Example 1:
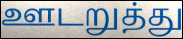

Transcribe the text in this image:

ஊடறுத்து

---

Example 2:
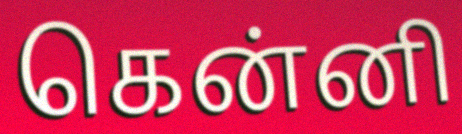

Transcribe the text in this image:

கென்னி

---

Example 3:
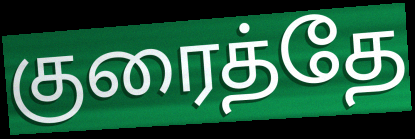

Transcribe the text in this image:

குரைத்தே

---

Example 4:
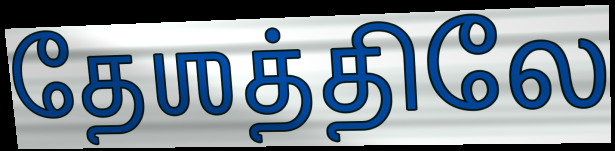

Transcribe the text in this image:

தேஶத்திலே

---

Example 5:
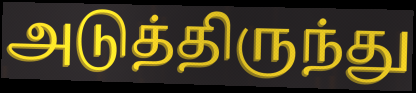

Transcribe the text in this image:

அடுத்திருந்து